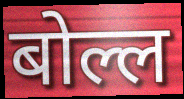
बोल्ल